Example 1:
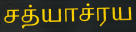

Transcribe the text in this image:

சத்யாச்ரய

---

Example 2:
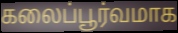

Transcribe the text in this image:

கலைப்பூர்வமாக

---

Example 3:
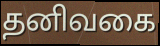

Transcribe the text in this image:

தனிவகை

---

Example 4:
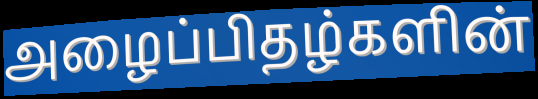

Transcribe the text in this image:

அழைப்பிதழ்களின்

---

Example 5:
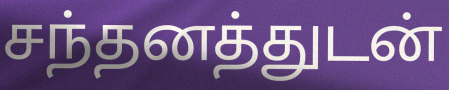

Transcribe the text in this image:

சந்தனத்துடன்